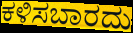
ಕಳಿಸಬಾರದು